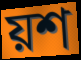
য়শ